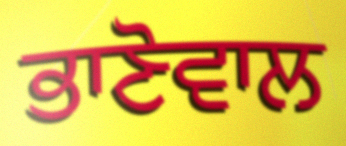
ਭਾਣੋਵਾਲ